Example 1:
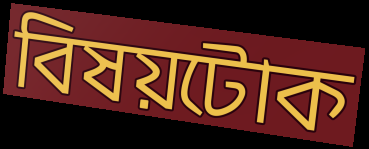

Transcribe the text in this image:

বিষয়টোক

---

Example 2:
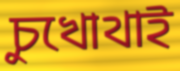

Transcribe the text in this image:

চুখোথাই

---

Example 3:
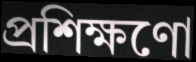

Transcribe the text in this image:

প্ৰশিক্ষণো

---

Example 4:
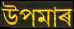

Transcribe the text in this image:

উপমাৰ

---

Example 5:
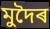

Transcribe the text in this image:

মুদৈৰ